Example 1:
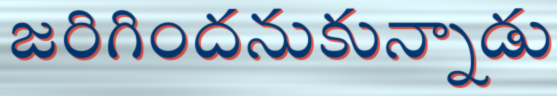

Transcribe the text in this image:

జరిగిందనుకున్నాడు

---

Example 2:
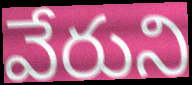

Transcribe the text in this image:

వేరుని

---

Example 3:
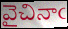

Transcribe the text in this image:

వైచినాఁ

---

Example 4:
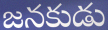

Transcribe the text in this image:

జనకుడు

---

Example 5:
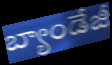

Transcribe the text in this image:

బ్యాండేజీ